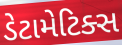
ડેટામેટિક્સ